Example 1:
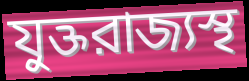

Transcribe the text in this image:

যুক্তরাজ্যস্থ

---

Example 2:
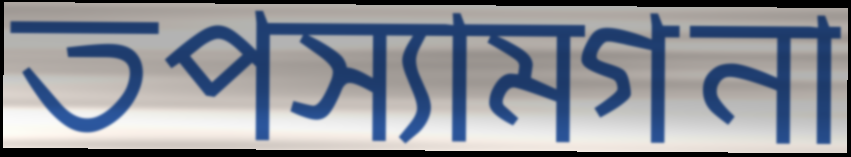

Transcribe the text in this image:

তপস্যামগনা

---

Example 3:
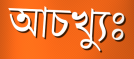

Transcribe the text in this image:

আচখ্যুঃ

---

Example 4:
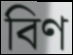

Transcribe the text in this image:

বিণ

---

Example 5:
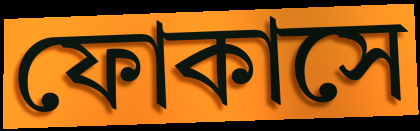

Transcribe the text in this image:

ফোকাসে